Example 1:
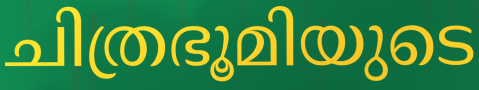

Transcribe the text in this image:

ചിത്രഭൂമിയുടെ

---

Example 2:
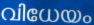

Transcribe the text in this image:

വിധേയം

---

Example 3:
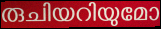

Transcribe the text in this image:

രുചിയറിയുമോ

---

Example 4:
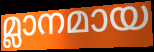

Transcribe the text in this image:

മ്ലാനമായ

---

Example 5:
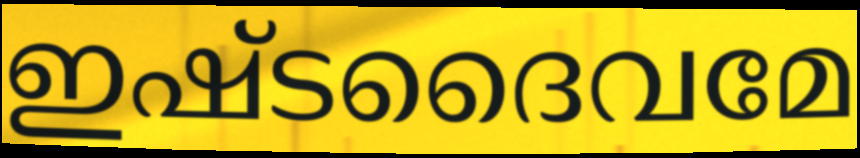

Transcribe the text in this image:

ഇഷ്ടദൈവമേ